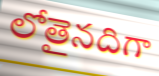
లోతైనదిగా